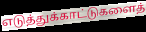
எடுத்துக்காட்டுகளைத்